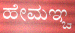
ಹೇಮಞ್ಚ